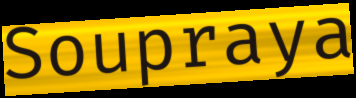
Soupraya